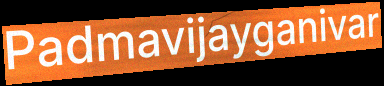
Padmavijayganivar